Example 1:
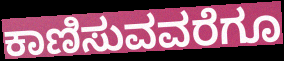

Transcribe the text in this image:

ಕಾಣಿಸುವವರೆಗೂ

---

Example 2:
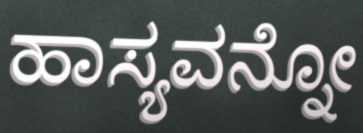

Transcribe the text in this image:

ಹಾಸ್ಯವನ್ನೋ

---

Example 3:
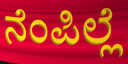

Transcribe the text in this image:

ನೆಂಪಿಲ್ಲೆ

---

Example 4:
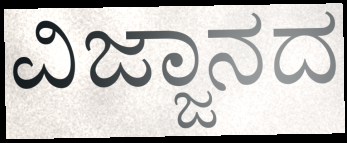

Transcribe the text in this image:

ವಿಜ್ಜಾನದ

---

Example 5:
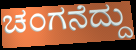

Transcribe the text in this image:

ಚಂಗನೆದ್ದು